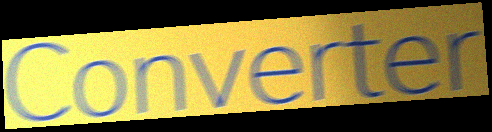
Converter